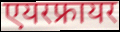
एयरफ्रायर